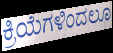
ಕ್ರಿಯೆಗಳಿಂದಲೂ